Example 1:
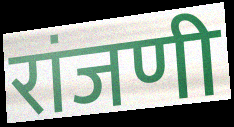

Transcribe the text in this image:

रांजणी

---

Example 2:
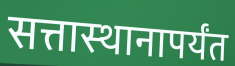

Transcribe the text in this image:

सत्तास्थानापर्यंत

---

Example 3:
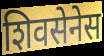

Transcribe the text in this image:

शिवसेनेस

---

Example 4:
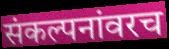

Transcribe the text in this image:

संकल्पनांवरच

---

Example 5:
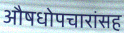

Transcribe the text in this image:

औषधोपचारांसह